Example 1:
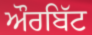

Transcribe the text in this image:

ਔਰਬਿੱਟ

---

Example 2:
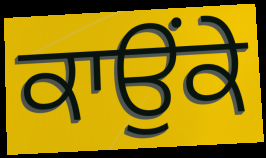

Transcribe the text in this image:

ਕਾਉਂਕੇ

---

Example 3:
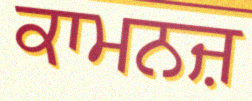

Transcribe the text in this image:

ਕਾਮਨਜ਼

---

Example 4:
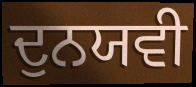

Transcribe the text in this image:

ਦੁਨਯਵੀ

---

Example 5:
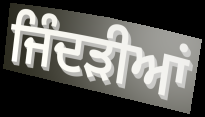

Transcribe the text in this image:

ਜਿੰਦੜੀਆਂ